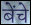
बेंचे